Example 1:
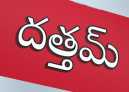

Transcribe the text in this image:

దత్తమ్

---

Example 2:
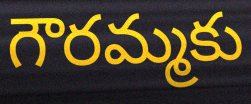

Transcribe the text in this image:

గౌరమ్మకు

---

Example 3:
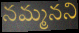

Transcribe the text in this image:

నమ్మనని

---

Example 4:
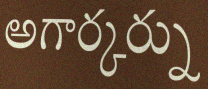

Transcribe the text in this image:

అగార్కర్ను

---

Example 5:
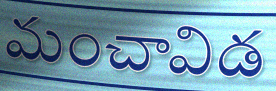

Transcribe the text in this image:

మంచావిడ